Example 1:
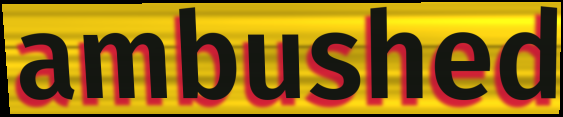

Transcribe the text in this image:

ambushed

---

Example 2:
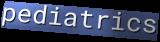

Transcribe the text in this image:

pediatrics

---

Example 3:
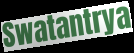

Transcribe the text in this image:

Swatantrya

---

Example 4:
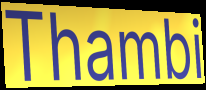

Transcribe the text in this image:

Thambi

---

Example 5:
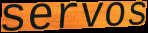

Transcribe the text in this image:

servos